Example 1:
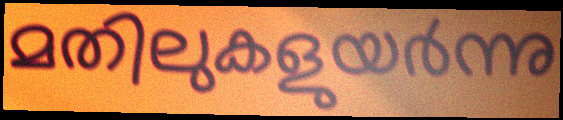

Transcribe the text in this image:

മതിലുകളുയർന്നു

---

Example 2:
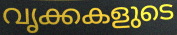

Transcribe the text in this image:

വൃക്കകളുടെ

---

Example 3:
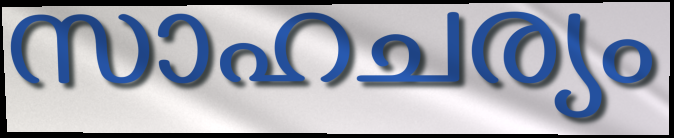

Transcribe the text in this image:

സാഹചര്യം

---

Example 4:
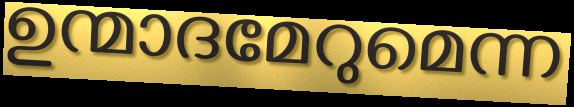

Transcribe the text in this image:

ഉന്മാദമേറുമെന്ന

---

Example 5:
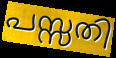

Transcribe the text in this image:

പസ്സതി